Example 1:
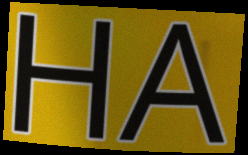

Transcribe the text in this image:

HA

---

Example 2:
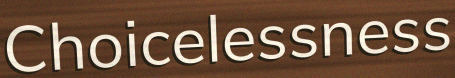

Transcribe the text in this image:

Choicelessness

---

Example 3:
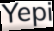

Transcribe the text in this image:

Yepi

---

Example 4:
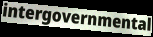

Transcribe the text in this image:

intergovernmental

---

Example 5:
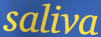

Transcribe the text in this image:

saliva